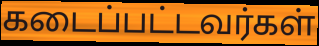
கடைப்பட்டவர்கள்